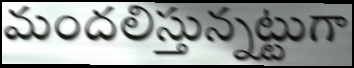
మందలిస్తున్నట్టుగా